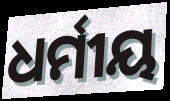
ଧର୍ମୀୟ